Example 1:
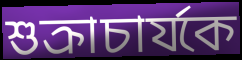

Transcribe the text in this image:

শুক্রাচার্যকে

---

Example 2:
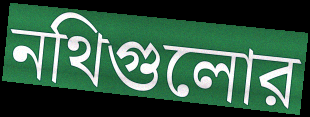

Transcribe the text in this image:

নথিগুলোর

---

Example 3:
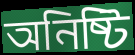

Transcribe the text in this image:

অনিষ্টি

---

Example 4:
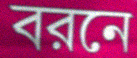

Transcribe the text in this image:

বরনে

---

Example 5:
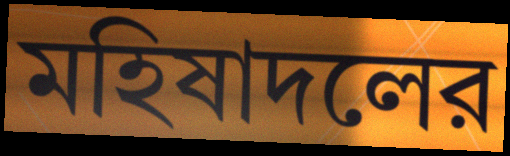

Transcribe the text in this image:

মহিষাদলের